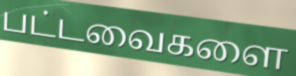
பட்டவைகளை